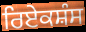
ਰਿਏਕਸ਼ੰਸ